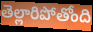
తెల్లారిపోతోంది